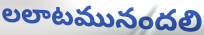
లలాటమునందలి